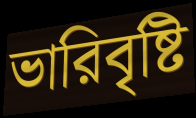
ভারিবৃষ্টি